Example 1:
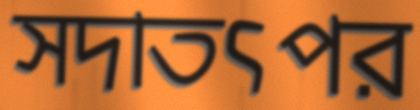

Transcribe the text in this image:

সদাতৎপর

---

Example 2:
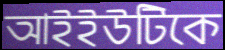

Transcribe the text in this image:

আইইউটিকে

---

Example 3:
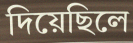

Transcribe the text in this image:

দিয়েছিলে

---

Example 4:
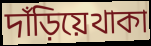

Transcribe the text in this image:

দাঁড়িয়েথাকা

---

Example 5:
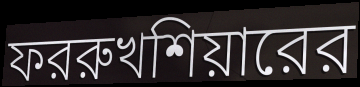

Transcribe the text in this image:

ফররুখশিয়ারের